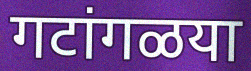
गटांगळया